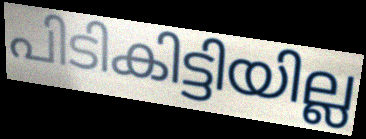
പിടികിട്ടിയില്ല